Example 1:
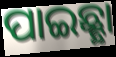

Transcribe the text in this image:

ପାଇଛ୍ଛା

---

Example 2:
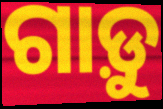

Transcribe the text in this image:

ଗାଡ଼ୁ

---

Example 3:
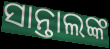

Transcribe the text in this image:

ସାନ୍ତାଲଙ୍କ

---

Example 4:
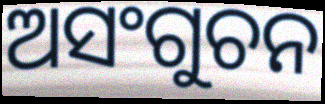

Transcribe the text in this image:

ଅସଂଗୁଚନ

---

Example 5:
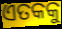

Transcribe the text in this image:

ଏତକକୁ